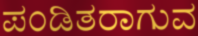
ಪಂಡಿತರಾಗುವ